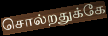
சொல்றதுக்கே